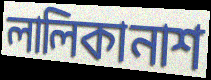
লালিকানাশ